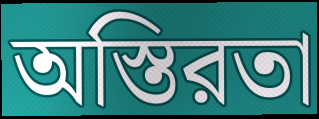
অস্তিরতা